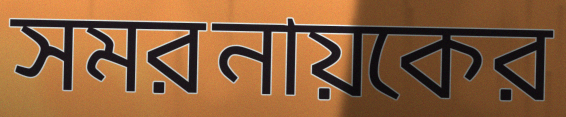
সমরনায়কের